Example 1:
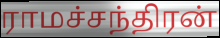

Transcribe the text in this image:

ராமச்சந்திரன்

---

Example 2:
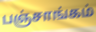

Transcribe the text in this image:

பஞ்சாங்கம்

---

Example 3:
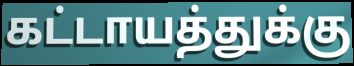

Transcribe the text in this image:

கட்டாயத்துக்கு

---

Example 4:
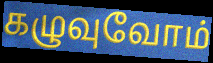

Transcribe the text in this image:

கழுவுவோம்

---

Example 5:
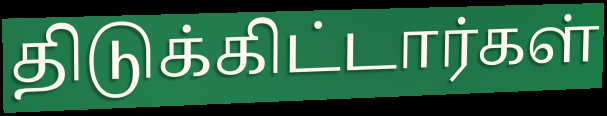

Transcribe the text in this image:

திடுக்கிட்டார்கள்